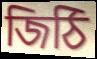
জিঠি